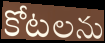
కోటలను